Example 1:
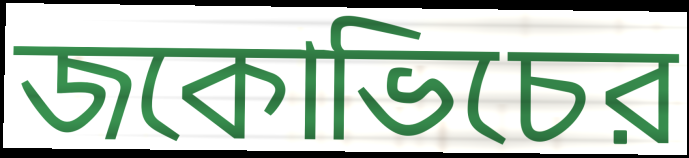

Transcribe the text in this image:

জকোভিচের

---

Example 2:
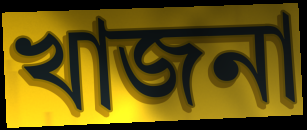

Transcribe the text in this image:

খাজনা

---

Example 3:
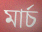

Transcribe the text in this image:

মার্চ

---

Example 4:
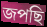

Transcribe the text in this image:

জপছি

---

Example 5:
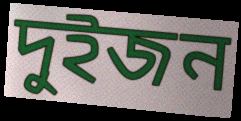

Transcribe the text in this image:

দুইজন